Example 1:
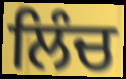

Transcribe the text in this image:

ਲਿੰਚ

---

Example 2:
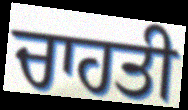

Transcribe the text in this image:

ਚਾਹਤੀ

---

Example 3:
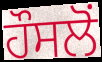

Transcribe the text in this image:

ਹੌਸਲੋਂ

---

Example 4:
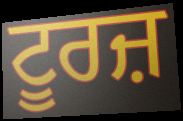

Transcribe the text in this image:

ਟੂਰਜ਼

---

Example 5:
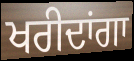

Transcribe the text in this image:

ਖਰੀਦਾਂਗਾ